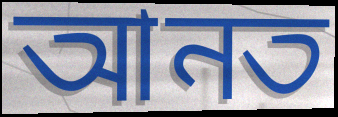
আনত